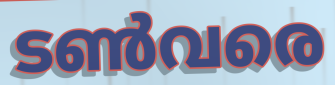
ടൺവരെ